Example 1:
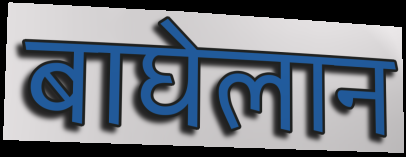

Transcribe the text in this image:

बाघेलान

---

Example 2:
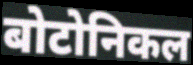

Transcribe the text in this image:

बोटोनिकल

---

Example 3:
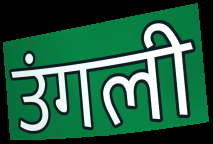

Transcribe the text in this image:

उंगली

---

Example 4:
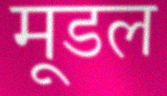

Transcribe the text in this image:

मूडल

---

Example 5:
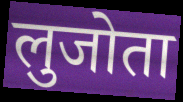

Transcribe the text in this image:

लुजोता